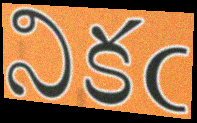
నికఁ